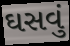
ઘસવું